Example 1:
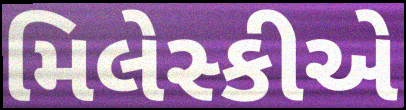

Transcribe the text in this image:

મિલેસ્કીએ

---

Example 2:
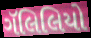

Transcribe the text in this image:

ગૅલિલિયો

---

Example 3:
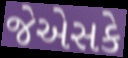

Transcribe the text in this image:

જેએસકે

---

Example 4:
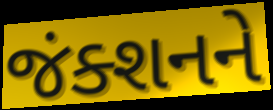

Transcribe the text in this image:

જંક્શનને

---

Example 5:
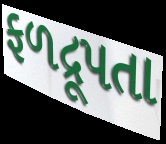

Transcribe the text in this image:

ફળદ્રૂપતા